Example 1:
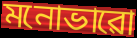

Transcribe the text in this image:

মনোভাৱো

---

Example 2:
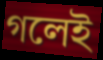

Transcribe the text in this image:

গলেই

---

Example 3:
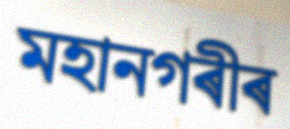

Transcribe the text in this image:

মহানগৰীৰ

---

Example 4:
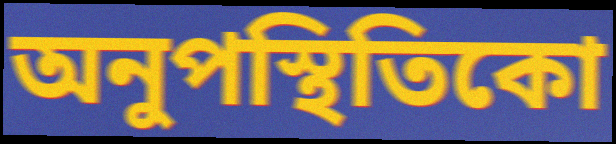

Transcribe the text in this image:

অনুপস্থিতিকো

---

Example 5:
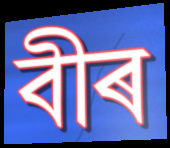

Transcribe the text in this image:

বীৰ